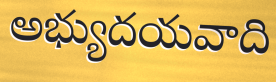
అభ్యుదయవాది